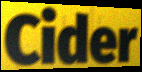
Cider